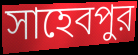
সাহেবপুর